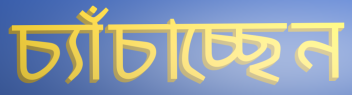
চ্যাঁচাচ্ছেন